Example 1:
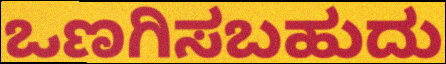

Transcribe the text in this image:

ಒಣಗಿಸಬಹುದು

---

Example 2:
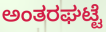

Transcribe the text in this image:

ಅಂತರಘಟ್ಟೆ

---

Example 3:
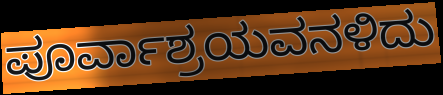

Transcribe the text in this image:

ಪೂರ್ವಾಶ್ರಯವನಳಿದು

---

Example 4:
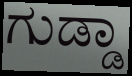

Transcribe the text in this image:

ಗುಡ್ಡಾ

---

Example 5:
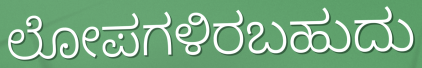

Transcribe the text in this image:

ಲೋಪಗಳಿರಬಹುದು